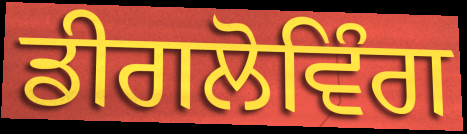
ਡੀਗਲੋਵਿੰਗ